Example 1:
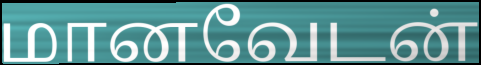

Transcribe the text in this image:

மானவேடன்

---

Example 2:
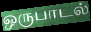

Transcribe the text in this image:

ஒருபாடல்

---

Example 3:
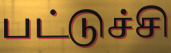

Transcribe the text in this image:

பட்டுச்சி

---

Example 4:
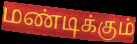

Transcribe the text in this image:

மண்டிக்கும்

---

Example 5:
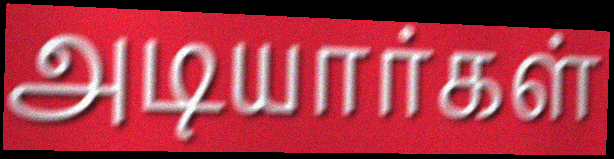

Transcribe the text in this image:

அடியார்கள்